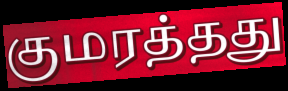
குமரத்தது